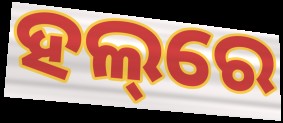
ହଲ୍‌ରେ